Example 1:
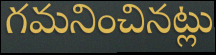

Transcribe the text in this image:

గమనించినట్లు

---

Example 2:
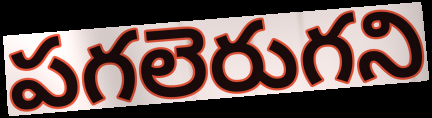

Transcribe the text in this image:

పగలెరుగని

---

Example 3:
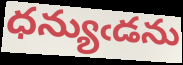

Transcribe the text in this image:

ధన్యుఁడను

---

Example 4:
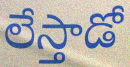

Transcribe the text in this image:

లేస్తాడో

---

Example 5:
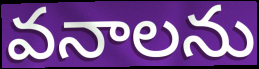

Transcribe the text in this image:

వనాలను